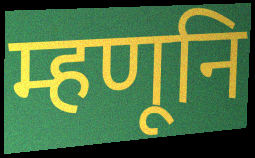
म्हणूनि